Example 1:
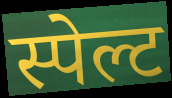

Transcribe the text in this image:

स्पेल्ट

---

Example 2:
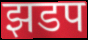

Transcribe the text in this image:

झडप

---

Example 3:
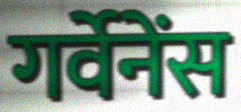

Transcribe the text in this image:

गर्वेनेंस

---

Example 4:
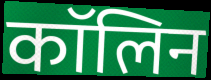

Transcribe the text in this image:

कॉलिन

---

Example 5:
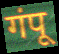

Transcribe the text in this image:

गंपू